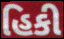
હિકી